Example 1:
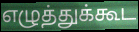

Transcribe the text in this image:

எழுத்துக்கூட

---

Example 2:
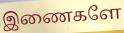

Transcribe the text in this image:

இணைகளே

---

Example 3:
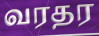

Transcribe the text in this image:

வரதர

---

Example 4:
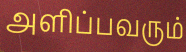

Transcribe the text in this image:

அளிப்பவரும்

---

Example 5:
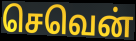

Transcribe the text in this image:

செவென்